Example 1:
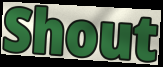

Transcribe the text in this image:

Shout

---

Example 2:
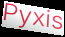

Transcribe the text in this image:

Pyxis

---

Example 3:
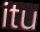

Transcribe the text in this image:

itu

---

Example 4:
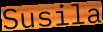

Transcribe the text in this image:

Susila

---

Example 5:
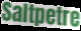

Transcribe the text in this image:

Saltpetre